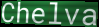
Chelva